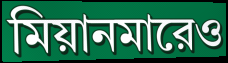
মিয়ানমারেও